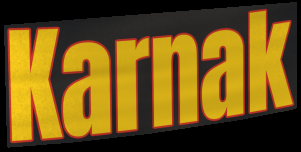
Karnak